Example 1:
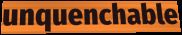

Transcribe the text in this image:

unquenchable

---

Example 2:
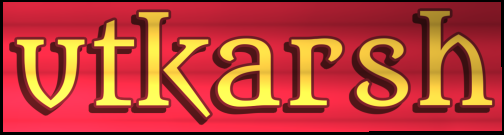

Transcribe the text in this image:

utkarsh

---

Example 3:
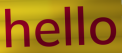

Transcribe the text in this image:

hello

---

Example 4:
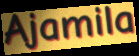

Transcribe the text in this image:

Ajamila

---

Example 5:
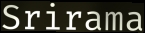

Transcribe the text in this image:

Srirama